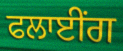
ਫਲਾਈਂਗ